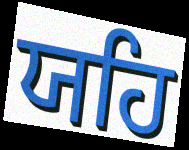
ਯਹਿ